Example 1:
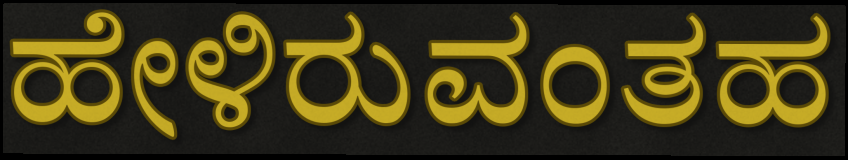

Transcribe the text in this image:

ಹೇಳಿರುವಂತಹ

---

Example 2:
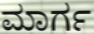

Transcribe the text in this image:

ಮಾರ್ಗ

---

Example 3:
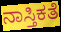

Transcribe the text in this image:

ನಾಸ್ತಿಕತೆ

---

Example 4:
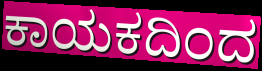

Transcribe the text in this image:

ಕಾಯಕದಿಂದ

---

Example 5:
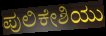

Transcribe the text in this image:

ಪುಲಿಕೇಶಿಯು